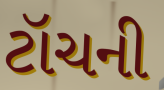
ટૉચની